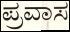
ಪ್ರವಾಸ